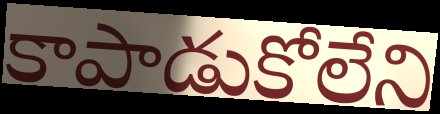
కాపాడుకోలేని